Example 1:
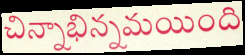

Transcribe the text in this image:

చిన్నాభిన్నమయింది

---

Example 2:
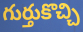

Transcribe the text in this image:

గుర్తుకొచ్చి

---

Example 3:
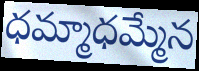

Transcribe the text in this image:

ధమ్మాధమ్మేన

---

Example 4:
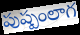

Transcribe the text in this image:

పుష్పంలాగ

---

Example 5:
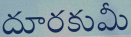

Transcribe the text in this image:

దూరకుమీ